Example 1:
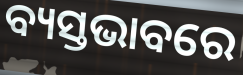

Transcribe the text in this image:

ବ୍ୟସ୍ତଭାବରେ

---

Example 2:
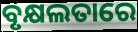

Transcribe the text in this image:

ବୃକ୍ଷଲତାରେ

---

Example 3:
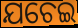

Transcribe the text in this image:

ଯଚେଇ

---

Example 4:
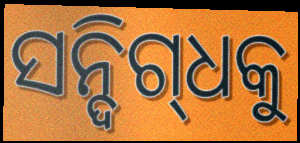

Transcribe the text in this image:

ସନ୍ଦିଗ୍‌ଧକୁ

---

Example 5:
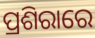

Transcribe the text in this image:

ପ୍ରଶିରାରେ